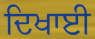
ਦਿਖਾਈ